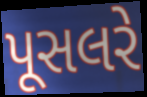
પૂસલરે